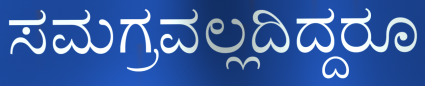
ಸಮಗ್ರವಲ್ಲದಿದ್ದರೂ